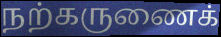
நற்கருணைக்